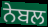
ਨੇਬਲ